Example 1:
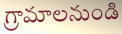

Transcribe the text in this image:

గ్రామాలనుండి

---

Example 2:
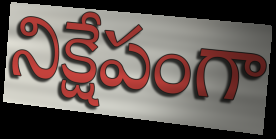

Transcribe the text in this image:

నిక్షేపంగా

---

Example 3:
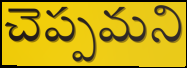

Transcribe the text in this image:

చెప్పమని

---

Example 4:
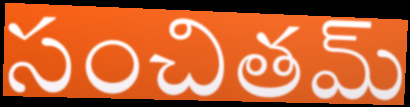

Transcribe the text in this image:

సంచితమ్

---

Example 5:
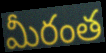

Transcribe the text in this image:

మీరంత